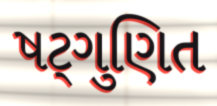
ષટ્ગુણિત